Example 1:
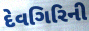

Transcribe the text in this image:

દેવગિરિની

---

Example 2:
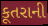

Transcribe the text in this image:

કૂતરાની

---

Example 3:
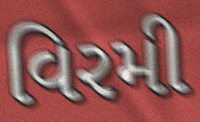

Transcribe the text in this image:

વિરમી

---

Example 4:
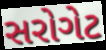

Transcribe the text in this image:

સરોગેટ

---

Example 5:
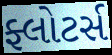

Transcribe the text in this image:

ફ્લોટર્સ